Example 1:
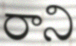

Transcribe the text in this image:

రాని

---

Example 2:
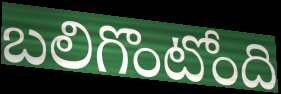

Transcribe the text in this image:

బలిగొంటోంది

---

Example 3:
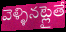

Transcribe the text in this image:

వెళ్ళినట్లైతే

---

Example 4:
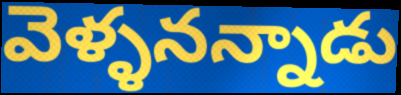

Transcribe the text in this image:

వెళ్ళనన్నాడు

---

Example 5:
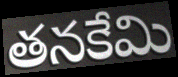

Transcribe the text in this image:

తనకేమి